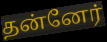
தன்னேர்